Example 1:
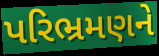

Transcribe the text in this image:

પરિભ્રમણને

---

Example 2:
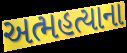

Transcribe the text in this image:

અત્મહત્યાના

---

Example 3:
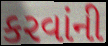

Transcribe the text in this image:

કરવાંની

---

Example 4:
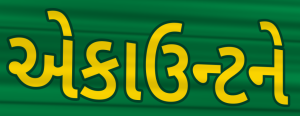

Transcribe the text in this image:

એકાઉન્ટને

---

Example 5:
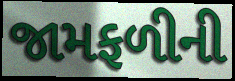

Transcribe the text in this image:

જામફળીની